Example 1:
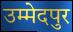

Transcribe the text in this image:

उम्मेदपुर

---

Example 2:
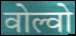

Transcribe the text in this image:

वोल्वो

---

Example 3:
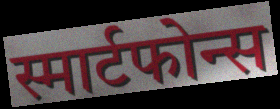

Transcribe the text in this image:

स्मार्टफोन्स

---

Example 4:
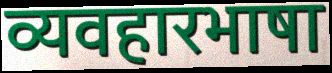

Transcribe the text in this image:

व्यवहारभाषा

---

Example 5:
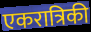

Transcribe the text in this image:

एकरात्रिकी